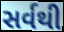
સર્વથી